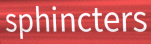
sphincters